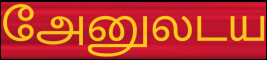
அேனுலடய